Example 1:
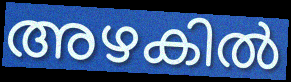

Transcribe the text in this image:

അഴകിൽ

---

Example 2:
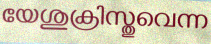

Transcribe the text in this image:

യേശുക്രിസ്തുവെന്ന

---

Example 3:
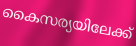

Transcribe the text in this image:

കൈസര്യയിലേക്ക്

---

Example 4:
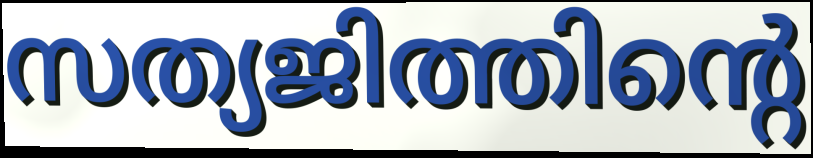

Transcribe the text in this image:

സത്യജിത്തിന്റെ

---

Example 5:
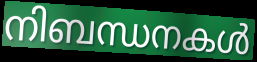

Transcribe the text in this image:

നിബന്ധനകൾ